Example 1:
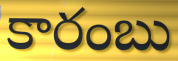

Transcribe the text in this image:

కారంబు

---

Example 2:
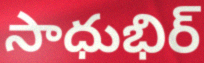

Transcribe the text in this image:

సాధుభిర్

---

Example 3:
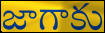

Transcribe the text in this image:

జాగాకు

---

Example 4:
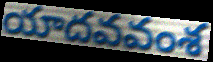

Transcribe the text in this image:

యాదవవంశ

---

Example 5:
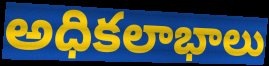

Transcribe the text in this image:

అధికలాభాలు